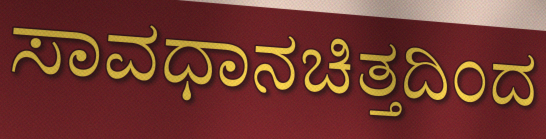
ಸಾವಧಾನಚಿತ್ತದಿಂದ